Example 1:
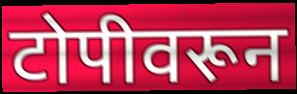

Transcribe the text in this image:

टोपीवरून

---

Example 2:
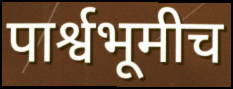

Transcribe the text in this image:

पार्श्वभूमीच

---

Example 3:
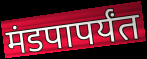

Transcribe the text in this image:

मंडपापर्यंत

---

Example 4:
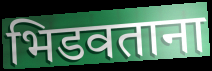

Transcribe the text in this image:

भिडवताना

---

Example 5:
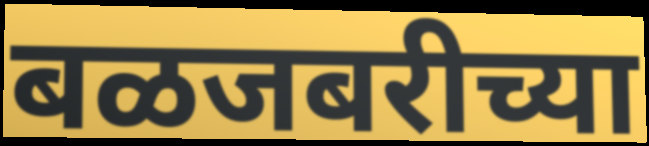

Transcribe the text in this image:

बळजबरीच्या